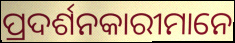
ପ୍ରଦର୍ଶନକାରୀମାନେ